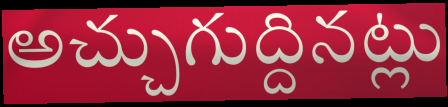
అచ్చుగుద్దినట్లు